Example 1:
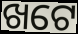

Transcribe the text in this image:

ଖଟେ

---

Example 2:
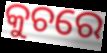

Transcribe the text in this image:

କୁଚରେ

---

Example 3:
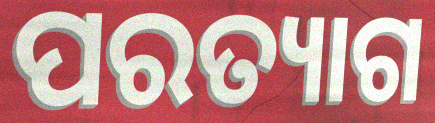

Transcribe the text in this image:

ପରତ୍ୟାଗ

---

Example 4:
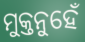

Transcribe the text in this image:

ମୁକ୍ତନୁହେଁ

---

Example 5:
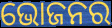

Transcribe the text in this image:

ଭୋଜନର